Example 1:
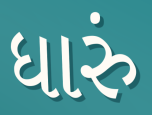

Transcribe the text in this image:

ધારું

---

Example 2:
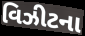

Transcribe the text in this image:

વિઝીટના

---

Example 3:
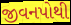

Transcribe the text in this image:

જીવનપોથી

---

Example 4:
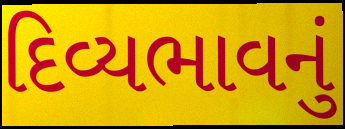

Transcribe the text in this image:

દિવ્યભાવનું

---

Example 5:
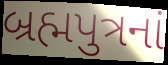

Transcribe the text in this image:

બ્રહ્મપુત્રનાં